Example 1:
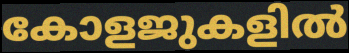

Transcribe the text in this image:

കോളജുകളിൽ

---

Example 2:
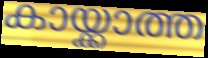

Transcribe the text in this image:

കായ്ക്കാത്ത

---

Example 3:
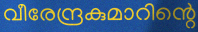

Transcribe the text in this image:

വീരേന്ദ്രകുമാറിന്റെ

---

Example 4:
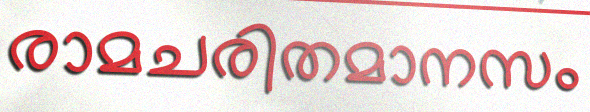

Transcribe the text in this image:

രാമചരിതമാനസം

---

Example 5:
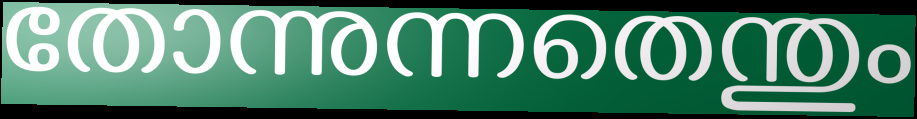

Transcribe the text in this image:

തോന്നുന്നതെന്തും